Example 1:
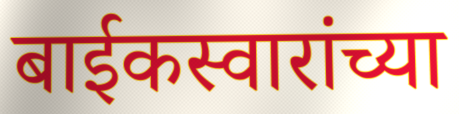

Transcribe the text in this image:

बाईकस्वारांच्या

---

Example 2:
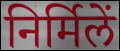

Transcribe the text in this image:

निर्मिलें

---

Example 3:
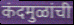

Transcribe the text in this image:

कंदमुळांची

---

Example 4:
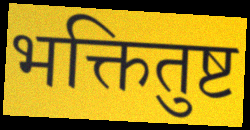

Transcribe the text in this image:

भक्तितुष्ट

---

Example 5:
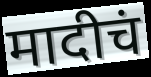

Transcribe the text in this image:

मादीचं